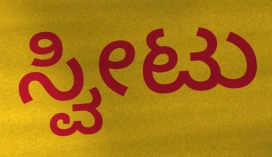
ಸ್ವೀಟು